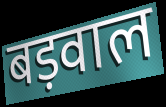
बड़वाल